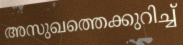
അസുഖത്തെക്കുറിച്ച്